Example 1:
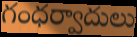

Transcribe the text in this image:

గంధర్వాదులు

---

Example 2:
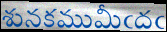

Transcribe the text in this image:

శునకముమీఁదఁ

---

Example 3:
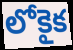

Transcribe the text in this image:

లోకైక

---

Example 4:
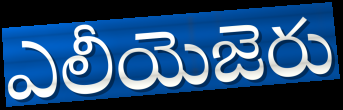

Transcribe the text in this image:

ఎలీయెజెరు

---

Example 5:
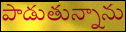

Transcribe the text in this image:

పాడుతున్నాను